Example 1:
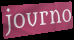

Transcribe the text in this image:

journo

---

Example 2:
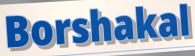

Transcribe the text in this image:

Borshakal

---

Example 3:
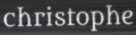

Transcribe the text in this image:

christophe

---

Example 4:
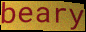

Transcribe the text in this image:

beary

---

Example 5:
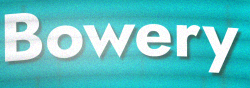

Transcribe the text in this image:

Bowery